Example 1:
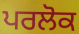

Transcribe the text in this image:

ਪਰਲੋਕ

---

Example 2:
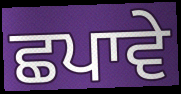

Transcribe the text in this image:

ਛਪਾਵੇ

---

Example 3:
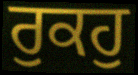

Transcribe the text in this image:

ਰੁਕਹੁ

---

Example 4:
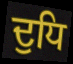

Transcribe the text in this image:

ਦੁਧਿ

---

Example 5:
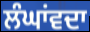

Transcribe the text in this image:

ਲੰਘਾਂਵਦਾ